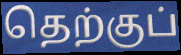
தெற்குப்